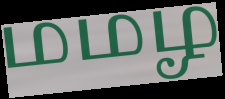
மமழ